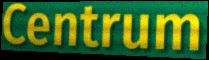
Centrum